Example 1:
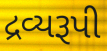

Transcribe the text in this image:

દ્રવ્યરૂપી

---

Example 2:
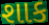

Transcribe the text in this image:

શાક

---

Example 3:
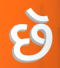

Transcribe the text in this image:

છૅ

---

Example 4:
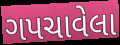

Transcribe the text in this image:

ગપચાવેલા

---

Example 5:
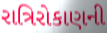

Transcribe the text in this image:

રાત્રિરોકાણની